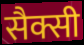
सैक्सी